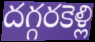
దగ్గరకెళ్లి